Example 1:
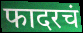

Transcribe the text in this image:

फादरचं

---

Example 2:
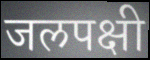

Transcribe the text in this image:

जलपक्षी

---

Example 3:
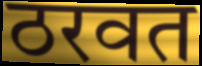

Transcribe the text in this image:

ठरवत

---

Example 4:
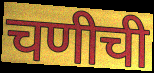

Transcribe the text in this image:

चणीची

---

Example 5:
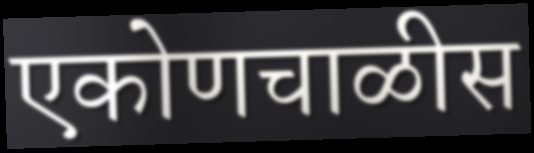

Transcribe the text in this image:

एकोणचाळीस